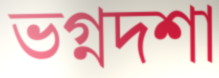
ভগ্নদশা